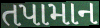
તપામાન